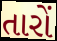
તારોં